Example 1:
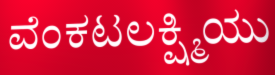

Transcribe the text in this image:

ವೆಂಕಟಲಕ್ಷ್ಮಿಯು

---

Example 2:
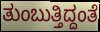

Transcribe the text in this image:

ತುಂಬುತ್ತಿದ್ದಂತೆ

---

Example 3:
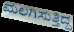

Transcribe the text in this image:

ಮಲಗಿಸುತ್ತಿದ್ದ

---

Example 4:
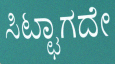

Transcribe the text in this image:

ಸಿಟ್ಟಾಗದೇ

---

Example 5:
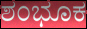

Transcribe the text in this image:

ಶಂಭೂಕ